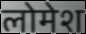
लोमेश